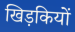
खिड़कियों